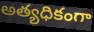
అత్యధికంగా